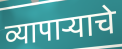
व्यापाऱ्याचे